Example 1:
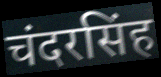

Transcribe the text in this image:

चंदरसिंह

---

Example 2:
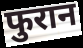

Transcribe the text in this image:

फुरान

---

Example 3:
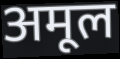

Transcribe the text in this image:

अमूल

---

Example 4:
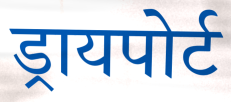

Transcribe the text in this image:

ड्रायपोर्ट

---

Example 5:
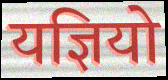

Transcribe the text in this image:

यज्ञियो